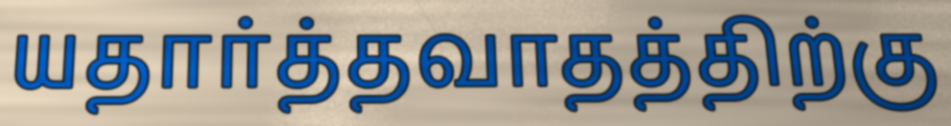
யதார்த்தவாதத்திற்கு